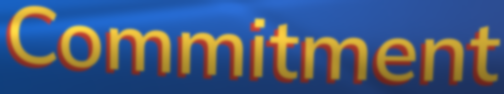
Commitment